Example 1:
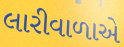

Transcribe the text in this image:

લારીવાળાએ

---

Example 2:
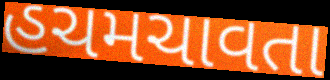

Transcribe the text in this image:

હચમચાવતા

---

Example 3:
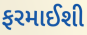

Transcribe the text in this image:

ફરમાઈશી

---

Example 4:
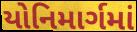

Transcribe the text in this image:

યોનિમાર્ગમાં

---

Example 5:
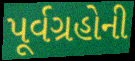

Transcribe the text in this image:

પૂર્વગ્રહોની